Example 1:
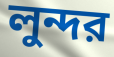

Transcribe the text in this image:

লুন্দর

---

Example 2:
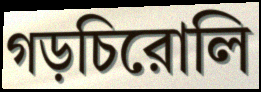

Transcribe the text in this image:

গড়চিরোলি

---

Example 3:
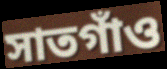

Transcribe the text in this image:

সাতগাঁও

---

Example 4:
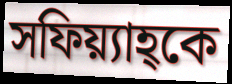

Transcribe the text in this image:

সফিয়্যাহ্কে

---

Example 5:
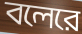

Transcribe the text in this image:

বলেরে